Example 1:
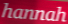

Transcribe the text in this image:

hannah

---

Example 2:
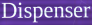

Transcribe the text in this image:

Dispenser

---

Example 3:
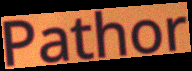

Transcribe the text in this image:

Pathor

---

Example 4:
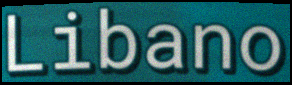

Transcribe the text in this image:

Libano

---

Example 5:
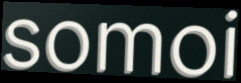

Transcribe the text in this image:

somoi